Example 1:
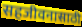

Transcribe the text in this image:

सहजीवनासाठी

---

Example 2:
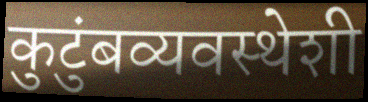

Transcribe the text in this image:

कुटुंबव्यवस्थेशी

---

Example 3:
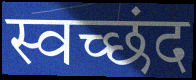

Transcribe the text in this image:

स्वच्छंद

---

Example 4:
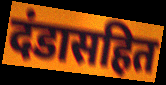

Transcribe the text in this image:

दंडासहित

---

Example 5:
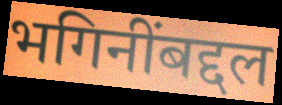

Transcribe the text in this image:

भगिनींबद्दल